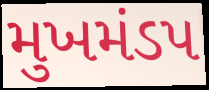
મુખમંડપ